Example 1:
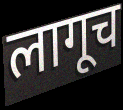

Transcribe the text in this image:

लागूच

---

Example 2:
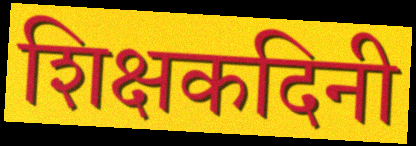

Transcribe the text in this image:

शिक्षकदिनी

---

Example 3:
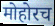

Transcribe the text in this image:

मोहोरच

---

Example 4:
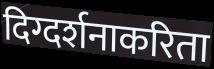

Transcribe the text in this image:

दिग्दर्शनाकरिता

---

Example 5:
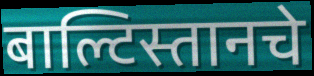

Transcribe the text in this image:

बाल्टिस्तानचे